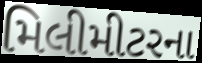
મિલીમીટરના